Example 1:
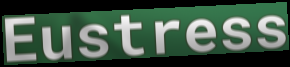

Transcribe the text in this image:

Eustress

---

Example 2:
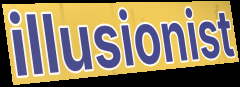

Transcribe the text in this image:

illusionist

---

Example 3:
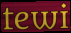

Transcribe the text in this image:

tewi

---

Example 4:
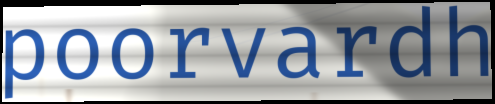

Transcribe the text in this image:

poorvardh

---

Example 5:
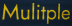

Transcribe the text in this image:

Mulitple